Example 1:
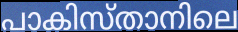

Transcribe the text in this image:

പാകിസ്താനിലെ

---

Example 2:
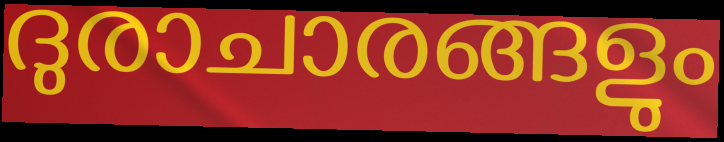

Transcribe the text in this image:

ദുരാചാരങ്ങളും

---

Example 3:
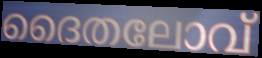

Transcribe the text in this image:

ദൈതലോവ്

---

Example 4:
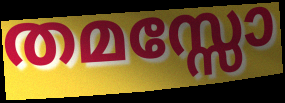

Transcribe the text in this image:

തമസ്സോ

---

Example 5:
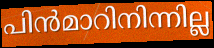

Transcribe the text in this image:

പിൻമാറിനിന്നില്ല